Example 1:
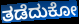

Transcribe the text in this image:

ತಡೆದುಕೋ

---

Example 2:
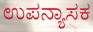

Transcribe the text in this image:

ಉಪನ್ಯಾಸಕ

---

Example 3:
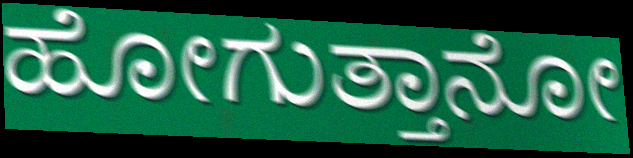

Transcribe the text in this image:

ಹೋಗುತ್ತಾನೋ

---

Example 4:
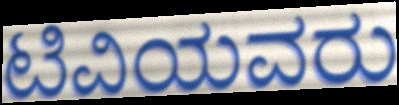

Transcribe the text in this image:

ಟಿವಿಯವರು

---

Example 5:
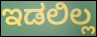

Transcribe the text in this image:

ಇಡಲಿಲ್ಲ